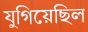
যুগিয়েছিল